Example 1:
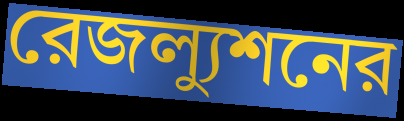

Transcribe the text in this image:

রেজল্যুশনের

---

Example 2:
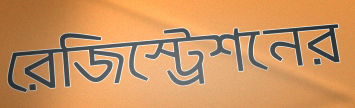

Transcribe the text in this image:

রেজিস্ট্রেশনের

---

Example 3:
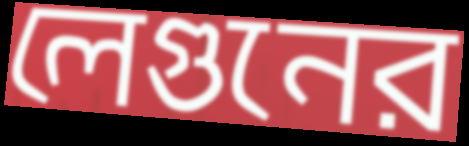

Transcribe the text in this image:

লেগুনের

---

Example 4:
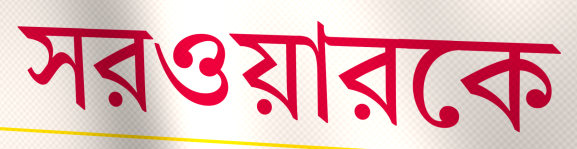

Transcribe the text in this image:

সরওয়ারকে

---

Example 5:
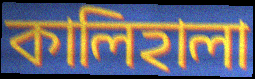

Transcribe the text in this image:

কালিহালা